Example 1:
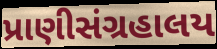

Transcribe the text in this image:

પ્રાણીસંગ્રહાલય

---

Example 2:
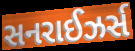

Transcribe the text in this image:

સનરાઈઝર્સ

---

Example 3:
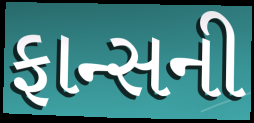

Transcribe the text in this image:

ફાન્સની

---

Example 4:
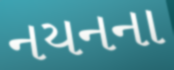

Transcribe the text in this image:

નયનના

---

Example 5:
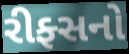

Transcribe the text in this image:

રીફ્સનો